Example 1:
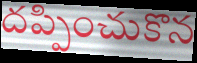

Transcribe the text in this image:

దప్పించుకొన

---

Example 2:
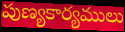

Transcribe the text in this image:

పుణ్యకార్యములు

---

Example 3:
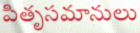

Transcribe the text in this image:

పితృసమానులు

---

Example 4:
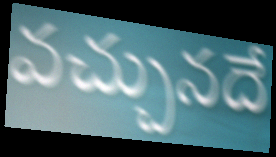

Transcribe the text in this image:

వచ్చునదే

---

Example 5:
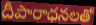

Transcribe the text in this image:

దీపారాధనలతో